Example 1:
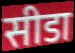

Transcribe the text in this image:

सीडा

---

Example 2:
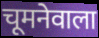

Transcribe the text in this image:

चूमनेवाला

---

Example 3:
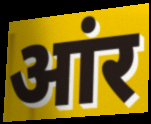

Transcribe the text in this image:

आंर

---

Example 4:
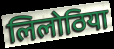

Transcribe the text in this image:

लिलोठिया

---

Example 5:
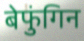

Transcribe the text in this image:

बेफुंगिन